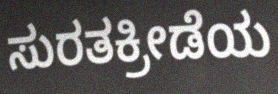
ಸುರತಕ್ರೀಡೆಯ